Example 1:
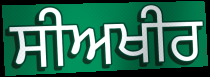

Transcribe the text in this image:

ਸੀਅਖੀਰ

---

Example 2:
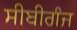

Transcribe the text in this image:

ਸੀਬੀਗੰਜ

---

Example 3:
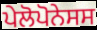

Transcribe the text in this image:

ਪੇਲੋਪੋਨੇਸਸ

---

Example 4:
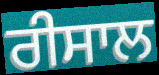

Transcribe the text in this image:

ਰੀਸਾਲ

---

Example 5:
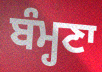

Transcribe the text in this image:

ਬੰਮ੍ਹਣਾ